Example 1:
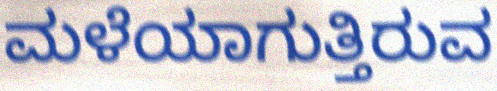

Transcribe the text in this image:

ಮಳೆಯಾಗುತ್ತಿರುವ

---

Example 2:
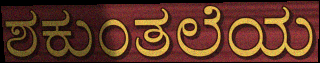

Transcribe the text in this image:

ಶಕುಂತಲೆಯ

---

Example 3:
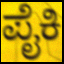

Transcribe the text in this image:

ಪೈಕಿ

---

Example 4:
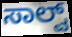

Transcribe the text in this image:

ಸಾಲ್ವ್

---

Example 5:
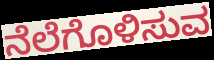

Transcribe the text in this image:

ನೆಲೆಗೊಳಿಸುವ